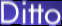
Ditto